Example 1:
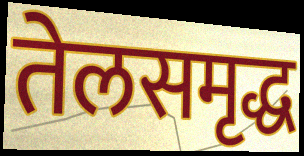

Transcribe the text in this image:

तेलसमृद्ध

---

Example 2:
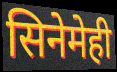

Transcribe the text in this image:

सिनेमेही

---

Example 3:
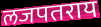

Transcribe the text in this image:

लजपतराय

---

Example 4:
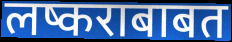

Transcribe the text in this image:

लष्कराबाबत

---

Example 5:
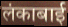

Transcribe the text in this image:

लंकाबाई